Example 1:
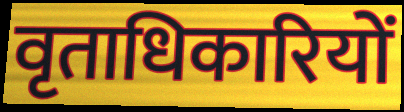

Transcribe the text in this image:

वृताधिकारियों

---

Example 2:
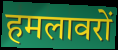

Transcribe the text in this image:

हमलावरों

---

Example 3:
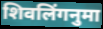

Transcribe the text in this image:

शिवलिंगनुमा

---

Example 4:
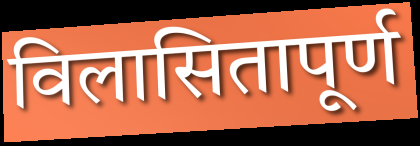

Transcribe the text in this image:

विलासितापूर्ण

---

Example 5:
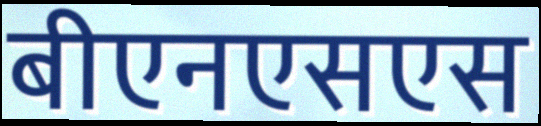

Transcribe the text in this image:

बीएनएसएस